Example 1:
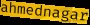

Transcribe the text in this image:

ahmednagar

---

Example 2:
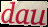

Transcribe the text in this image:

dau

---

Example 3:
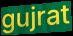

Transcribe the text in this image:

gujrat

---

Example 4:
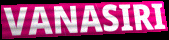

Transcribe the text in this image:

VANASIRI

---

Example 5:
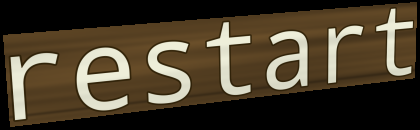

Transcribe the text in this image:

restart